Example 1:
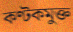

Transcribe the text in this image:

কণ্টকমুক্ত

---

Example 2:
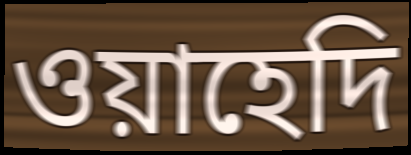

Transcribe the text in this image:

ওয়াহেদি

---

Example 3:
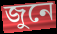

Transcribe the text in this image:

জুনে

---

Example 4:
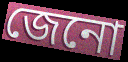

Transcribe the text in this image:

জেনো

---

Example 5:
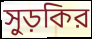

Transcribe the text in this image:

সুড়কির